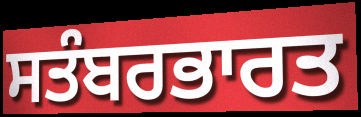
ਸਤੰਬਰਭਾਰਤ